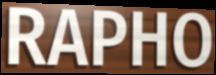
RAPHO